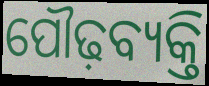
ପୌଢ଼ବ୍ୟକ୍ତି